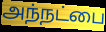
அந்நட்பை